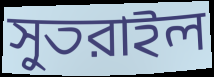
সুতরাইল